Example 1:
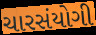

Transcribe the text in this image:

ચારસંયોગી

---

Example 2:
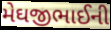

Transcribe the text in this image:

મેઘજીભાઈની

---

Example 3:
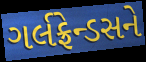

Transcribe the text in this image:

ગર્લફ્રેન્ડસને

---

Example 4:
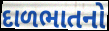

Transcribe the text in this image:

દાળભાતનો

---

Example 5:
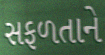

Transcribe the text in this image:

સફળતાને